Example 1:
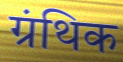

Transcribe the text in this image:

ग्रंथिक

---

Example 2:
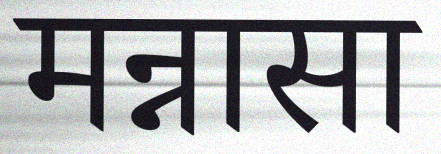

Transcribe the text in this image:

मन्नासा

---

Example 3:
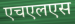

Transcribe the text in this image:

एचएलएस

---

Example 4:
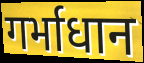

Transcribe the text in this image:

गर्भाधान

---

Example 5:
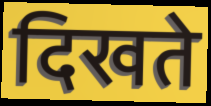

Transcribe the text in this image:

दिखते